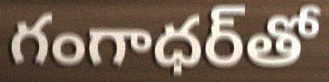
గంగాధర్‌తో